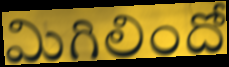
మిగిలిందో